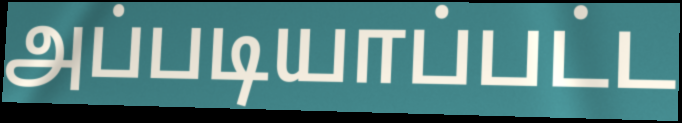
அப்படியாப்பட்ட